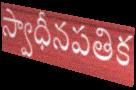
స్వాధీనపతిక